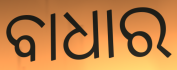
ବାଧାର